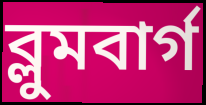
ব্লুমবার্গ